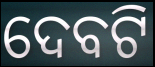
ଦେବଟି